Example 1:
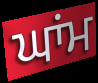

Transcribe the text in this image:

ਘਾਂਮ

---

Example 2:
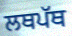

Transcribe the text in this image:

ਲਥਪੱਥ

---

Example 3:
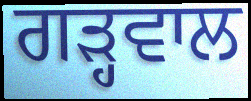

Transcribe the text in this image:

ਗੜ੍ਹਵਾਲ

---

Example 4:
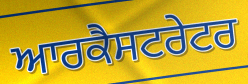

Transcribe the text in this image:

ਆਰਕੈਸਟਰੇਟਰ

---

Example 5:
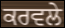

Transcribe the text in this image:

ਕਰਵਲੇ